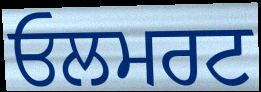
ਓਲਮਰਟ